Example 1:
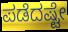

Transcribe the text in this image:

ಪಡೆದಷ್ಟೇ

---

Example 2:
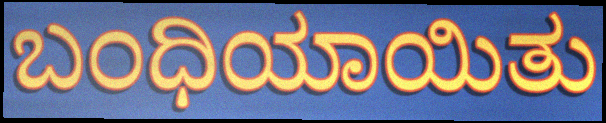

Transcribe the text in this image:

ಬಂಧಿಯಾಯಿತು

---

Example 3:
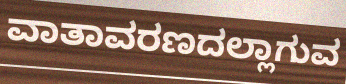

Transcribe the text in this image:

ವಾತಾವರಣದಲ್ಲಾಗುವ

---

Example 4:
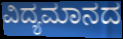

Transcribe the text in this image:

ವಿದ್ಯಮಾನದ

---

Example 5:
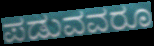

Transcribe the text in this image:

ಪಡುವವರೂ